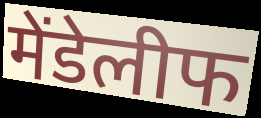
मेंडेलीफ